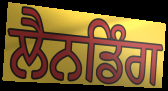
ਲੈਨਡਿੰਗ